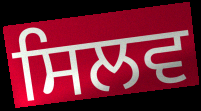
ਸਿਲਵ